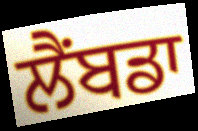
ਲੈਂਬਡਾ